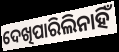
ଦେଖିପାରିଲିନାହିଁ